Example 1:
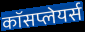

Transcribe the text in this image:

कॉसप्लेयर्स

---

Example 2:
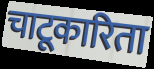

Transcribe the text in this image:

चाटूकारिता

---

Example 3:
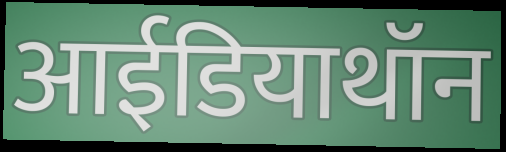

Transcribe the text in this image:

आईडियाथॉन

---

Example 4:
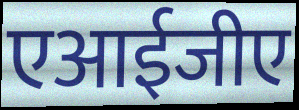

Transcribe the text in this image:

एआईजीए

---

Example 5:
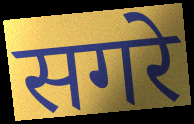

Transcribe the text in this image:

सगरे